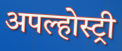
अपल्होस्ट्री